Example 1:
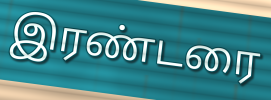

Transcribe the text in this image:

இரண்டரை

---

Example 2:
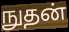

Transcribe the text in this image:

நுதன்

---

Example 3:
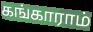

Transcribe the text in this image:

கங்காராம்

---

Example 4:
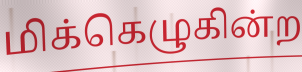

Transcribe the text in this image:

மிக்கெழுகின்ற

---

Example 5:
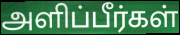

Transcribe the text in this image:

அளிப்பீர்கள்